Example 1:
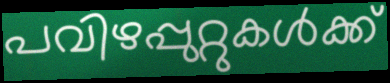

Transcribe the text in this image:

പവിഴപ്പുറ്റുകൾക്ക്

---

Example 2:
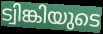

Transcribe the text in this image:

ട്വിങ്കിയുടെ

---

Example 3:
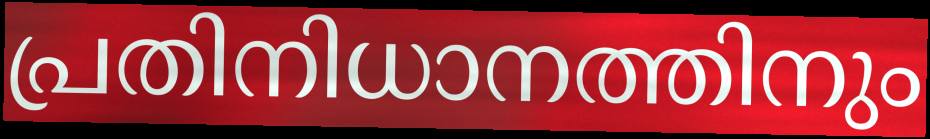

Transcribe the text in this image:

പ്രതിനിധാനത്തിനും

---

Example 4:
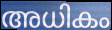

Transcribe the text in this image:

അധികം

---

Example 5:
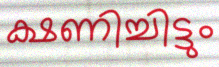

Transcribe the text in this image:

ക്ഷണിച്ചിട്ടും